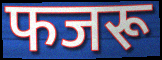
फजरू